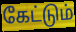
கேட்டும்